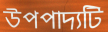
উপপাদ্যটি